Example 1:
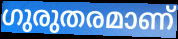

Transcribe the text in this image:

ഗുരുതരമാണ്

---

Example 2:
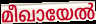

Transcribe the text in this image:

മീഖായേൽ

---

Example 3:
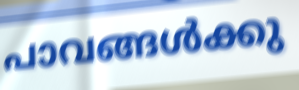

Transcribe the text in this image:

പാവങ്ങൾക്കു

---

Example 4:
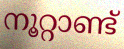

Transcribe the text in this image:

നൂറ്റാണ്ട്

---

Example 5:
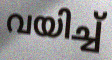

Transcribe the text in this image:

വയിച്ച്